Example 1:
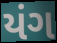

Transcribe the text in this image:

યંગ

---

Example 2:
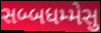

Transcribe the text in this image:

સબ્બધમ્મેસુ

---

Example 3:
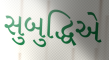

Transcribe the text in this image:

સુબુદ્ધિએ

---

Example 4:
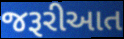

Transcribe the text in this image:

જરૂરીઆત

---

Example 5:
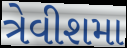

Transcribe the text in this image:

ત્રેવીશમા